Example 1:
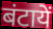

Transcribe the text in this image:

बंटायें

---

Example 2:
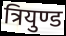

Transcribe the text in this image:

त्रियुण्ड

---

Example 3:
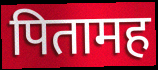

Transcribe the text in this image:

पितामह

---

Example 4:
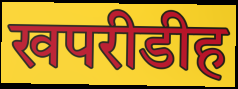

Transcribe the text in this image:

खपरीडीह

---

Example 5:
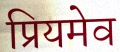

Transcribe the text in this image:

प्रियमेव